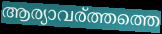
ആര്യാവര്ത്തത്തെ